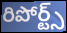
రిపోర్ట్స్